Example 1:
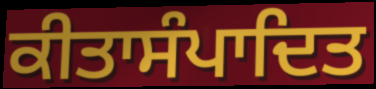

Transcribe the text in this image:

ਕੀਤਾਸੰਪਾਦਿਤ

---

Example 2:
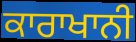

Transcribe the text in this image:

ਕਾਰਾਖਾਨੀ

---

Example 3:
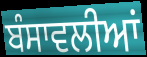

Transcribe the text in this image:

ਬੰਸਾਵਲੀਆਂ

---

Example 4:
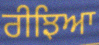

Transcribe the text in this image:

ਰੀਝਿਆ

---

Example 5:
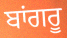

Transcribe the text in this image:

ਬਾਂਗਰੂ